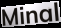
Minal